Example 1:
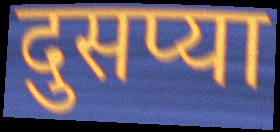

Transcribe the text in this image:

दुसप्या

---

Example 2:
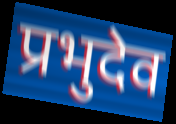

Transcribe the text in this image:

प्रभुदेव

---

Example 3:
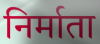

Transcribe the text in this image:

निर्माता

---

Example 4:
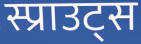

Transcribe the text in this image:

स्प्राउट्स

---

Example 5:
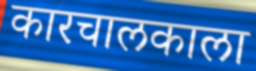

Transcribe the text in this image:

कारचालकाला